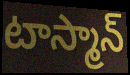
టాస్మాన్